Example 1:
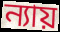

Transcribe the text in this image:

ন্যায়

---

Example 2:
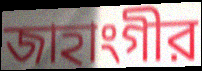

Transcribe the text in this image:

জাহাংগীর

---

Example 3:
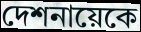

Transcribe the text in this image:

দেশনায়েকে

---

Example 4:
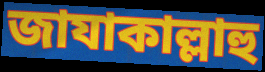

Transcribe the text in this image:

জাযাকাল্লাহু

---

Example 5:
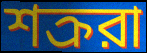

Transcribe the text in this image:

শক্ররা